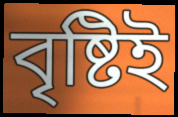
বৃষ্টিই